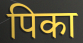
पिका